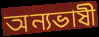
অন্যভাষী